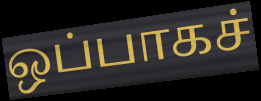
ஒப்பாகச்